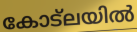
കോട്ലയിൽ